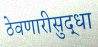
ठेवणारीसुद्धा